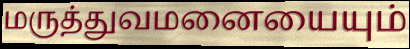
மருத்துவமனையையும்